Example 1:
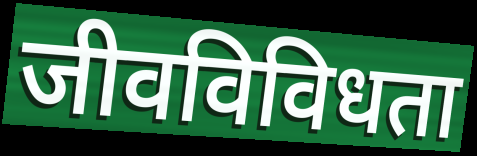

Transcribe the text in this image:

जीवविविधता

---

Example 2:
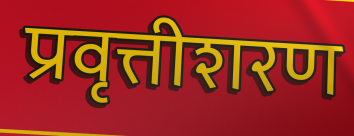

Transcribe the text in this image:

प्रवृत्तीशरण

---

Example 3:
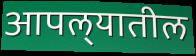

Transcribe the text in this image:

आपल्यातील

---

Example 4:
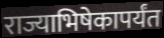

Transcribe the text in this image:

राज्याभिषेकापर्यंत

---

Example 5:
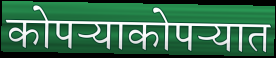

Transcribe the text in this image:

कोपऱ्याकोपऱ्यात